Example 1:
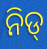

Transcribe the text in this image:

ନିଡ୍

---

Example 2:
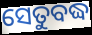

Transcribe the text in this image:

ସେତୁବଦ୍ଧ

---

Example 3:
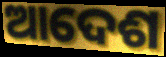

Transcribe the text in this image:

ଆଦେଶ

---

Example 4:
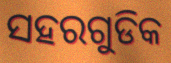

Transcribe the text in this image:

ସହରଗୁଡିକ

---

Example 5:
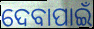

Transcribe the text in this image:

ଦେବାପାଇଁ